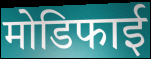
मोडिफाई